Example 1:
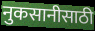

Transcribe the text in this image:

नुकसानीसाठी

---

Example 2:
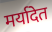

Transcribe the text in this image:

मर्यादेत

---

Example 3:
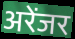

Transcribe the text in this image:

अरेंजर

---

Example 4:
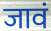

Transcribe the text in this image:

जावं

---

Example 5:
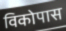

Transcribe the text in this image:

विकोपास